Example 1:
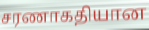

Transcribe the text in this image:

சரணாகதியான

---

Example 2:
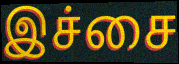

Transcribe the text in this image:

இச்சை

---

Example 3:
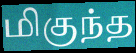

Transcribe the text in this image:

மிகுந்த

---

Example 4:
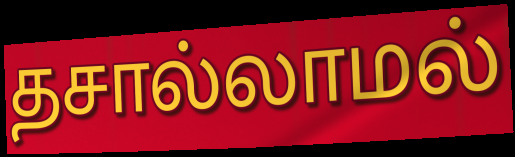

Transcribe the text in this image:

தசால்லாமல்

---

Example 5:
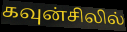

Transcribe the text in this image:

கவுன்சிலில்